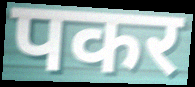
पकर